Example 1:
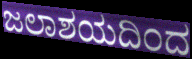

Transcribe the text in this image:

ಜಲಾಶಯದಿಂದ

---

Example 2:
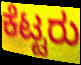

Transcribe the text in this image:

ಕೆಟ್ಟರು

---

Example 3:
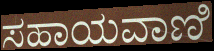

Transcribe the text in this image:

ಸಹಾಯವಾಣಿ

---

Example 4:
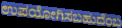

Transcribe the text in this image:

ಉಪಯೋಗಿಸಬಹುದೆಂಬ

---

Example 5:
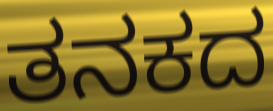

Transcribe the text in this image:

ತನಕದ